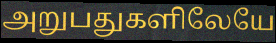
அறுபதுகளிலேயே